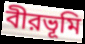
বীরভূমি